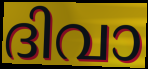
ദിവാ